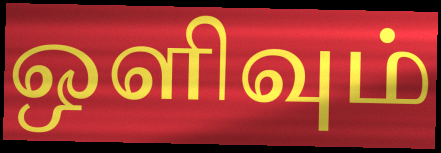
ஒளிவும்